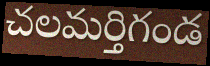
చలమర్తిగండ